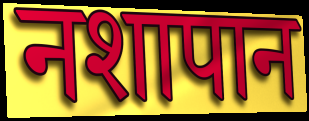
नशापान